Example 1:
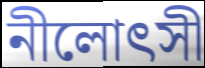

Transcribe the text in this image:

নীলোৎসী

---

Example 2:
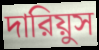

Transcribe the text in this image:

দারিয়ুস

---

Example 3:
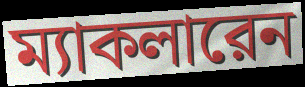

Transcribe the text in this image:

ম্যাকলারেন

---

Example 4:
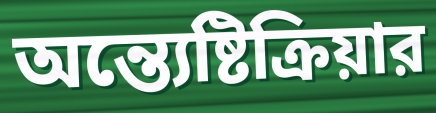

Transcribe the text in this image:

অন্ত্যেষ্টিক্রিয়ার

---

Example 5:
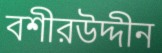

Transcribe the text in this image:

বশীরউদ্দীন